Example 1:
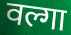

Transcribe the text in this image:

वल्गा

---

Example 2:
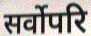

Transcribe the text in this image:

सर्वोपरि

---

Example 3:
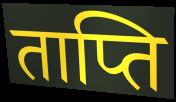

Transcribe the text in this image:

ताप्ति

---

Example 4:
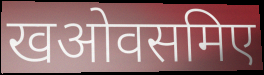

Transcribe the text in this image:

खओवसमिए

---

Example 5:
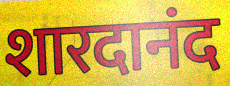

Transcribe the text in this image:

शारदानंद